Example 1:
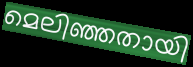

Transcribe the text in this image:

മെലിഞ്ഞതായി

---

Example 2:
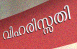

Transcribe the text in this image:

വിഹരിസ്സതി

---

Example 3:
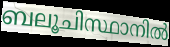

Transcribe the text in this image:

ബലൂചിസ്ഥാനിൽ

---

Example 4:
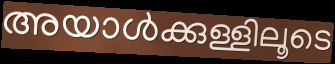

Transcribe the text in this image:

അയാൾക്കുള്ളിലൂടെ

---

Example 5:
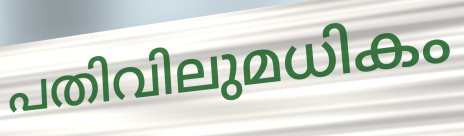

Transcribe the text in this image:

പതിവിലുമധികം